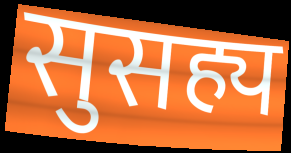
सुसह्य